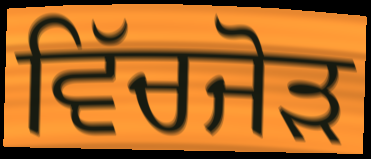
ਵਿੱਚਜੋੜ